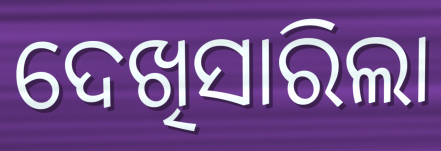
ଦେଖିସାରିଲା